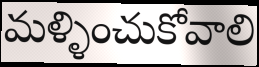
మళ్ళించుకోవాలి